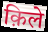
क़िले